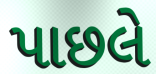
પાછલે